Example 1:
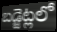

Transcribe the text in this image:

బడ్జెట్లలో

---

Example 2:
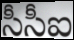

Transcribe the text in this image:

సీసీఐ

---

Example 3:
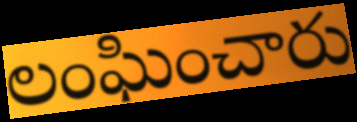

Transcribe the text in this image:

లంఘించారు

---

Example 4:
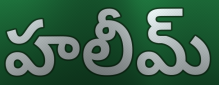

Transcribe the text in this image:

హలీమ్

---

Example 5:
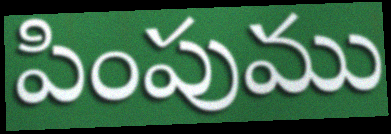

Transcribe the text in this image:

పింపుము